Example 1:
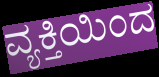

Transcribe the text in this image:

ವ್ಯಕ್ತಿಯಿಂದ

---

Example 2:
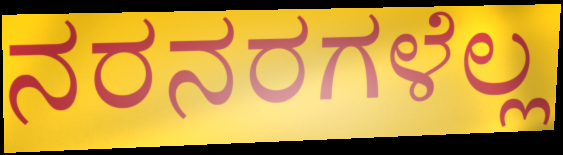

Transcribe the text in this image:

ನರನರಗಳೆಲ್ಲ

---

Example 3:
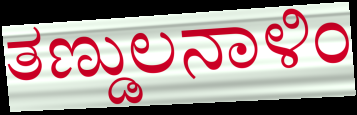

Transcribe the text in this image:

ತಣ್ಡುಲನಾಳಿಂ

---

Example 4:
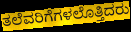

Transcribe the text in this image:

ತಲೆವರಿಗೆಗಳಲೊತ್ತಿದರು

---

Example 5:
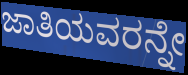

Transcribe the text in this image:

ಜಾತಿಯವರನ್ನೇ